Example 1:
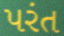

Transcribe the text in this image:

પરંત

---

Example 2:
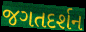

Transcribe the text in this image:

જગતદર્શન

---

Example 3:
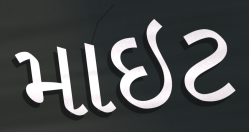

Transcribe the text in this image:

માઇટ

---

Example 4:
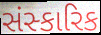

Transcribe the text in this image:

સંસ્કારિક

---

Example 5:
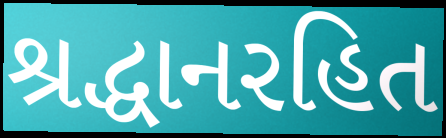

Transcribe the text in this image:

શ્રદ્ધાનરહિત